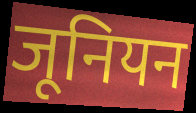
जूनियन